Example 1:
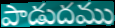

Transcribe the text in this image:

పాడుదము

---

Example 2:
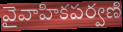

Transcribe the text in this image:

వైవాహికపర్వణి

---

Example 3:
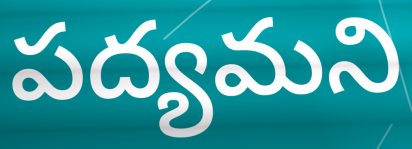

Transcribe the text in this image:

పద్యమని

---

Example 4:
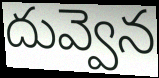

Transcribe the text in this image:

దువ్వెన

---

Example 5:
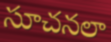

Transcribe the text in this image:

సూచనలా